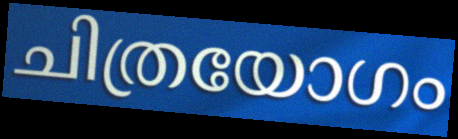
ചിത്രയോഗം